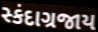
સ્કંદાગ્રજાય